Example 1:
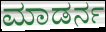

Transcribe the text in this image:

ಮಾಡರ್ನ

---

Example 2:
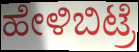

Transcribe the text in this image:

ಹೇಳಿಬಿಟ್ರೆ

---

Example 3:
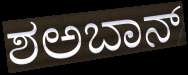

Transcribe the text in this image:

ಶಅಬಾನ್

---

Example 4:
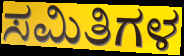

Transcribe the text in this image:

ಸಮಿತಿಗಳ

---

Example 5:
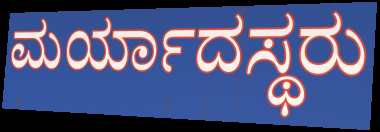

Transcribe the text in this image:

ಮರ್ಯಾದಸ್ಥರು